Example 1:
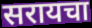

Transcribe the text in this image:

सरायचा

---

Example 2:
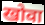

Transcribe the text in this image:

खोवा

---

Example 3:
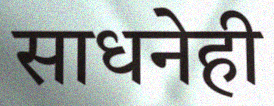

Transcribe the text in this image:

साधनेही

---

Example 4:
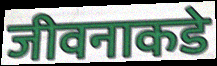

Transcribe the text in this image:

जीवनाकडे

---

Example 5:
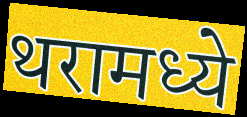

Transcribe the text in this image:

थरामध्ये